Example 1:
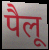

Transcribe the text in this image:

पैलू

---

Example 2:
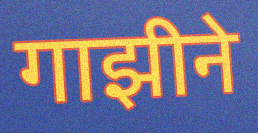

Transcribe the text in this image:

गाझीने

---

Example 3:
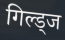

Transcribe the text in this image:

गिल्ड्ज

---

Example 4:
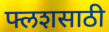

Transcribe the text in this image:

फ्लशसाठी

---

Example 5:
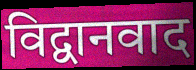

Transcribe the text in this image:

विद्वानवाद